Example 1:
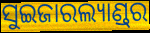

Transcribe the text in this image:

ସୁଇଜାରଲ୍ୟାଣ୍ଡ୍‌ର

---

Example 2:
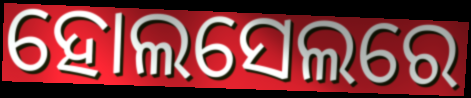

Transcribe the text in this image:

ହୋଲସେଲରେ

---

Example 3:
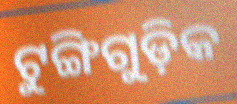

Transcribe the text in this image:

ଟୁଙ୍ଗିଗୁଡ଼ିକ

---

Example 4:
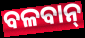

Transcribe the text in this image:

ବଳବାନ୍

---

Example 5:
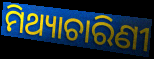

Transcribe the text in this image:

ମିଥ୍ୟାଚାରିଣୀ